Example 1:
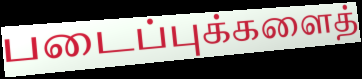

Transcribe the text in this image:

படைப்புக்களைத்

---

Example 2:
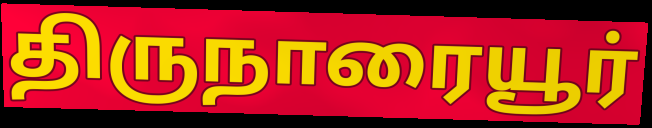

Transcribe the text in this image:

திருநாரையூர்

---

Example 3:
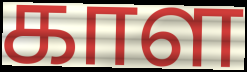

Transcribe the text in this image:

காள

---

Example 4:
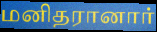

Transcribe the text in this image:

மனிதரானார்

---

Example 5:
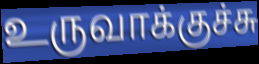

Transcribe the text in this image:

உருவாக்குச்சு